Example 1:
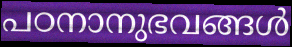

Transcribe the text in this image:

പഠനാനുഭവങ്ങൾ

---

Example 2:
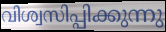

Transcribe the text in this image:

വിശ്വസിപ്പിക്കുന്നു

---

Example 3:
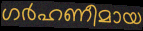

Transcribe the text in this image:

ഗർഹണീമായ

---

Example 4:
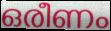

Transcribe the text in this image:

ഒരീണം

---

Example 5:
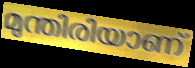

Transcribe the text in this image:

മുന്തിരിയാണ്